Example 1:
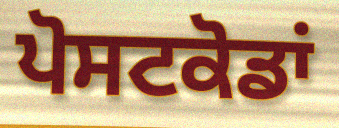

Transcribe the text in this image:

ਪੋਸਟਕੋਡਾਂ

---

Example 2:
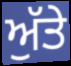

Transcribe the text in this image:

ਅੁੱਤੇ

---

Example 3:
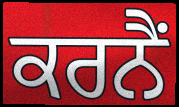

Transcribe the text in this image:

ਕਰਨੈਂ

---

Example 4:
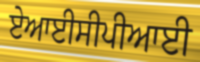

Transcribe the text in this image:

ਏਆਈਸੀਪੀਆਈ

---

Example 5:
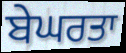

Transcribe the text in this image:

ਬੇਘਰਤਾ